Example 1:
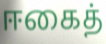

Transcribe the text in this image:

ஈகைத்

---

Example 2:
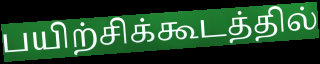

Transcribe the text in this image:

பயிற்சிக்கூடத்தில்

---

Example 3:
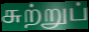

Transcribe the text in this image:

சுற்றுப்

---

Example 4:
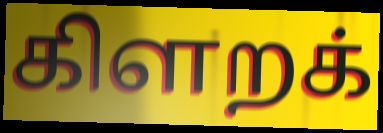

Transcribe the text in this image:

கிளறக்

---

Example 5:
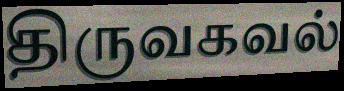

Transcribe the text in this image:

திருவகவல்